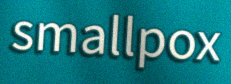
smallpox